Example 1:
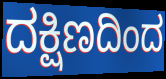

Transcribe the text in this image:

ದಕ್ಷಿಣದಿಂದ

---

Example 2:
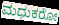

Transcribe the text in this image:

ಮಧುಕರೋ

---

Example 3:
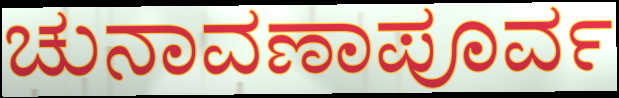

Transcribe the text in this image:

ಚುನಾವಣಾಪೂರ್ವ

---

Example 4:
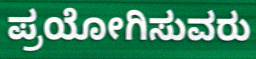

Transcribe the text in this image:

ಪ್ರಯೋಗಿಸುವರು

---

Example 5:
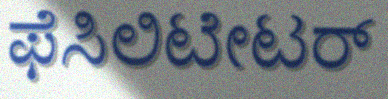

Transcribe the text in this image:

ಫೆಸಿಲಿಟೇಟರ್